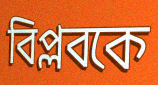
বিপ্লবকে